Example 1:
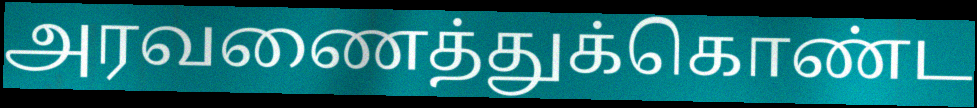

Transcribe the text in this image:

அரவணைத்துக்கொண்ட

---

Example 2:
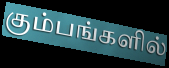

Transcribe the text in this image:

கும்பங்களில்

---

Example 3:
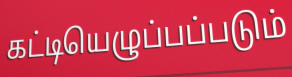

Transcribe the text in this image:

கட்டியெழுப்பப்படும்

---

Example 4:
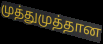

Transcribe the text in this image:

முத்துமுத்தான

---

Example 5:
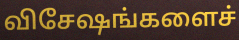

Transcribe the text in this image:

விசேஷங்களைச்